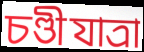
চণ্ডীযাত্রা